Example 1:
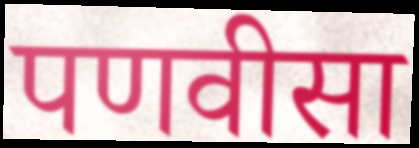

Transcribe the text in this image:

पणवीसा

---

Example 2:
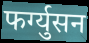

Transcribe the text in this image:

फर्ग्युसन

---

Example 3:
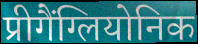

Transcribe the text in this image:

प्रीगैंग्लियोनिक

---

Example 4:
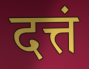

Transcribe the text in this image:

दत्तं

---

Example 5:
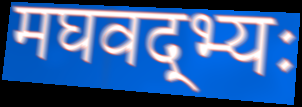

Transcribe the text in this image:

मघवद्भ्यः